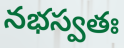
నభస్వతః